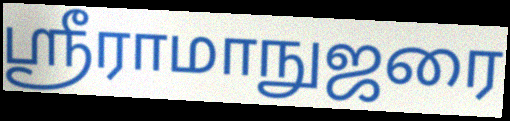
ஸ்ரீராமாநுஜரை